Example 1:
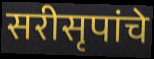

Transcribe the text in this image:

सरीसृपांचे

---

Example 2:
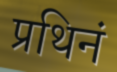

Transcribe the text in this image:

प्रथिनं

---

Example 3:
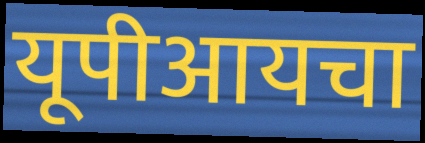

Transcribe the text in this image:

यूपीआयचा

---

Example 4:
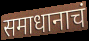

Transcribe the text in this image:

समाधानाचं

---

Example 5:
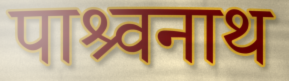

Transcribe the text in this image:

पाश्र्वनाथ